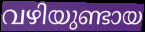
വഴിയുണ്ടായ